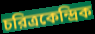
চরিত্রকেন্দ্রিক